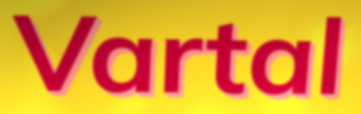
Vartal